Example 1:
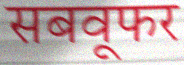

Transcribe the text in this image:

सबवूफर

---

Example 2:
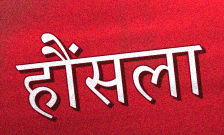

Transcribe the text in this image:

हौंसला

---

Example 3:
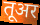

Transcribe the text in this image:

तूअर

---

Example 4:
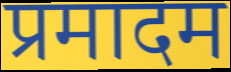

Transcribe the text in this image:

प्रमादम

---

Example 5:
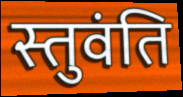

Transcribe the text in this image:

स्तुवंति